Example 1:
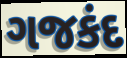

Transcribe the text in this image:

ગજકંદ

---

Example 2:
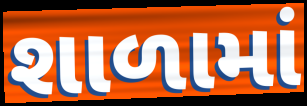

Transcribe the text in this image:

શાળામાં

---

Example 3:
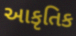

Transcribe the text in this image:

આકૃતિક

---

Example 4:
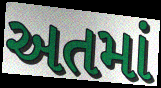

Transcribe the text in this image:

અતમાં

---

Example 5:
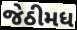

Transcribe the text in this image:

જેઠીમધ